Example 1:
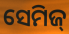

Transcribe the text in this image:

ସେମିଜ୍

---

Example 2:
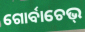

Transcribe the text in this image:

ଗୋର୍ବାଚେଭ୍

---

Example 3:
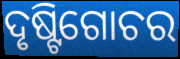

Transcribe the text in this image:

ଦୃଷ୍ଟିଗୋଚର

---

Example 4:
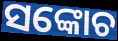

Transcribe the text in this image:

ସଙ୍କୋଚ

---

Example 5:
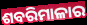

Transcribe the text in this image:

ଶବରିମାଳାର